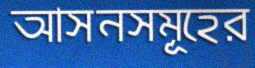
আসনসমূহের